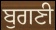
ਬੁਗਣੀ